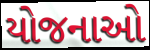
યોજનાઓ